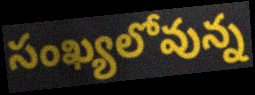
సంఖ్యలోవున్న